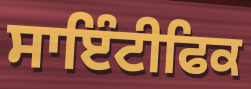
ਸਾਇੰਟੀਫਿਕ